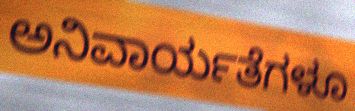
ಅನಿವಾರ್ಯತೆಗಳೂ